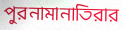
পুরনামানাতিরার